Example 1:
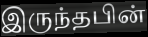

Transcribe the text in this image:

இருந்தபின்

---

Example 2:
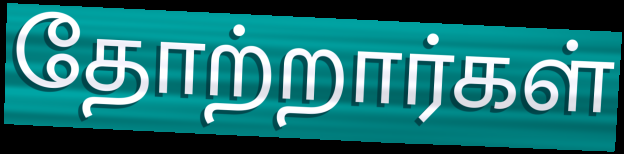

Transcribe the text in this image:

தோற்றார்கள்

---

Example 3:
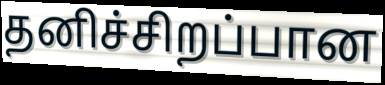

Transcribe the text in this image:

தனிச்சிறப்பான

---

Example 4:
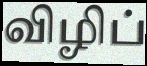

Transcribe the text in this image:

விழிப்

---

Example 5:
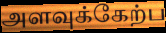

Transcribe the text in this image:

அளவுக்கேற்ப